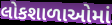
લોકશાળાઓમાં